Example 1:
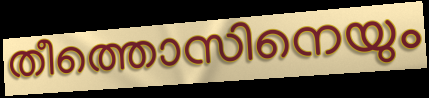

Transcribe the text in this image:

തീത്തൊസിനെയും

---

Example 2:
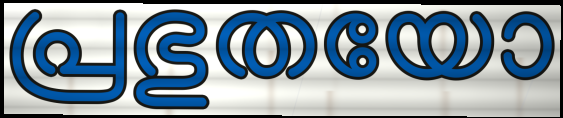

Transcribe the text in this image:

പ്രഭുതയോ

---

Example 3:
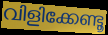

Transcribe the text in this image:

വിളിക്കേണ്ടൂ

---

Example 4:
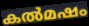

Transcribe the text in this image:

കൽമഷം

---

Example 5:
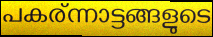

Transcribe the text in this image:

പകര്ന്നാട്ടങ്ങളുടെ